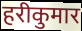
हरीकुमार